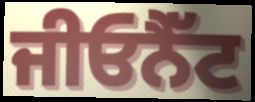
ਜੀਓਨੈੱਟ